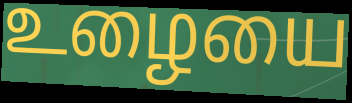
உழையை